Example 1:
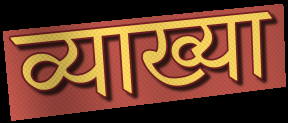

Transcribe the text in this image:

व्याख्या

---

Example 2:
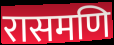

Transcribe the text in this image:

रासमणि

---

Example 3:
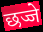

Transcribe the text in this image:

छज्जे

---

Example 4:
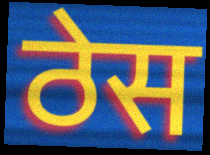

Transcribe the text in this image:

ठेस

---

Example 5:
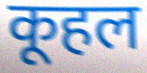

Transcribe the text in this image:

कूहल